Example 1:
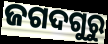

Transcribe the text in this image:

ଜଗଦଗୁରୁ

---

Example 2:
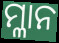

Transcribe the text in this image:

ମ୍ଳାନ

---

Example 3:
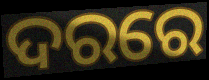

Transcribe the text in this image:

ଦରରେ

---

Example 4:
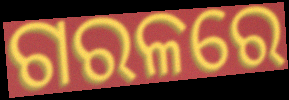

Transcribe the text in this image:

ଗରଳରେ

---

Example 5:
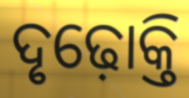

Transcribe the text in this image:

ଦୃଢ଼ୋକ୍ତି